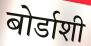
बोर्डाशी